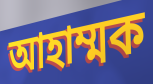
আহাম্মক